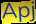
Apj